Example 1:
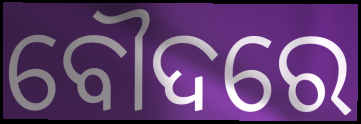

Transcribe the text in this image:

ବୌଦରେ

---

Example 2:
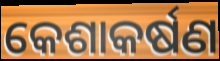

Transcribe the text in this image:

କେଶାକର୍ଷଣ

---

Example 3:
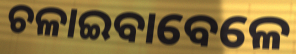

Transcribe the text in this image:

ଚଳାଇବାବେଳେ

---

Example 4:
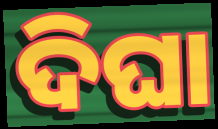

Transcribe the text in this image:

ଦିଘା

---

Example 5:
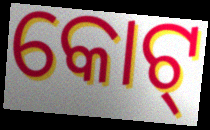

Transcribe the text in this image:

କୋଟ୍